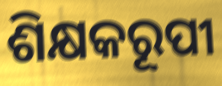
ଶିକ୍ଷକରୂପୀ